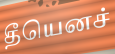
தீயெனச்